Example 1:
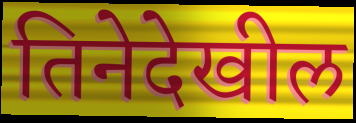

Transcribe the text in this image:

तिनेदेखील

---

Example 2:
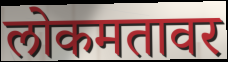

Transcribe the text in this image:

लोकमतावर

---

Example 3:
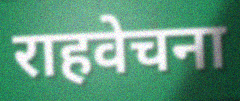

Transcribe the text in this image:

राहवेचना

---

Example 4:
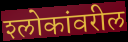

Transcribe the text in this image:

श्लोकांवरील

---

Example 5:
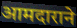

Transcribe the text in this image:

आमदाराने